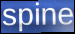
spine